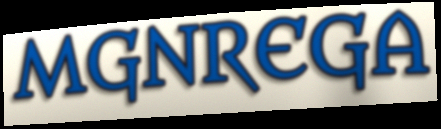
MGNREGA